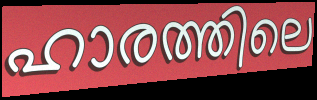
ഹാരത്തിലെ